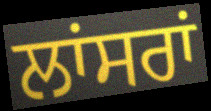
ਲਾਂਸਰਾਂ